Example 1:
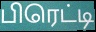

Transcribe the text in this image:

பிரெட்டி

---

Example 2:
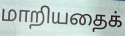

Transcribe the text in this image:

மாறியதைக்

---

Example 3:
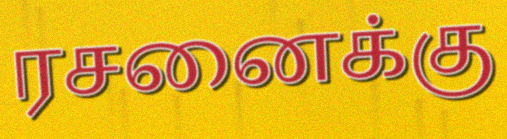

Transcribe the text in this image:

ரசனைக்கு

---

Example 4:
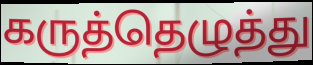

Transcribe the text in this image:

கருத்தெழுத்து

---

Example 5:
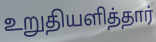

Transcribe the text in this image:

உறுதியளித்தார்